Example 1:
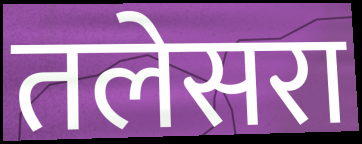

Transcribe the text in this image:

तलेसरा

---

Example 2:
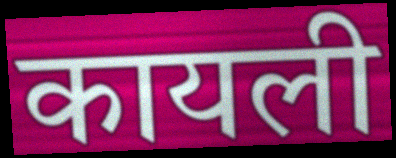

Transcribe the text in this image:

कायली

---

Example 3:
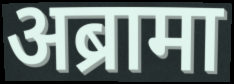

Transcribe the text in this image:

अब्रामा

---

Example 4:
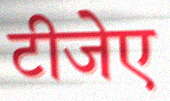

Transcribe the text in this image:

टीजेए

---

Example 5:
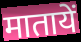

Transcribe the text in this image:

मातायें